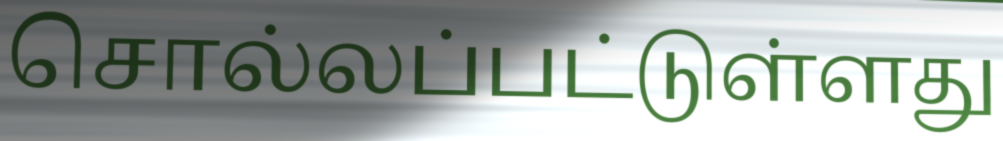
சொல்லப்பட்டுள்ளது